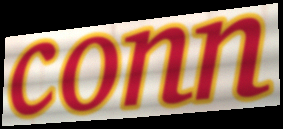
conn